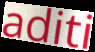
aditi